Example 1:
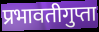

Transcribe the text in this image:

प्रभावतीगुप्ता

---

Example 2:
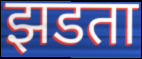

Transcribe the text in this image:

झडता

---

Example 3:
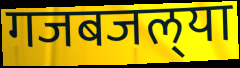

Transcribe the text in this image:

गजबजल्या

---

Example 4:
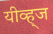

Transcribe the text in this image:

यीव्ह्ज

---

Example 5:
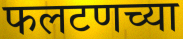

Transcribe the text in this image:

फलटणच्या